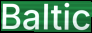
Baltic